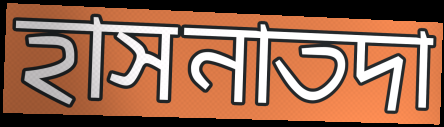
হাসনাতদা